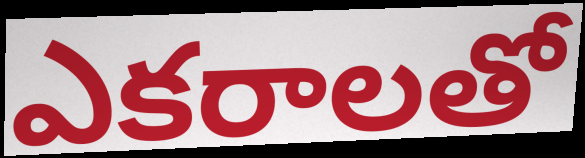
ఎకరాలతో